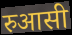
रुआसी